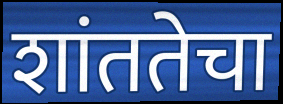
शांततेचा